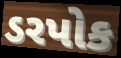
ડરપોક